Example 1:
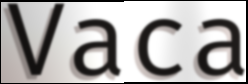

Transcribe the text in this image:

Vaca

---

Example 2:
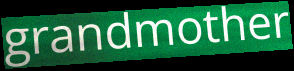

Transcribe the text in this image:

grandmother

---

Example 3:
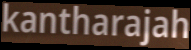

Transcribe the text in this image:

kantharajah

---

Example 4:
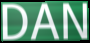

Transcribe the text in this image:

DAN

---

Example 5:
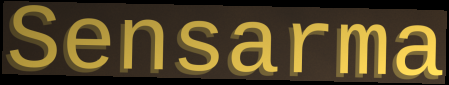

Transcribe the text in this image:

Sensarma